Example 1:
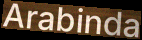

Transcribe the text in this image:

Arabinda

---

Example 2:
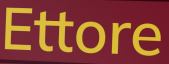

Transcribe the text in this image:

Ettore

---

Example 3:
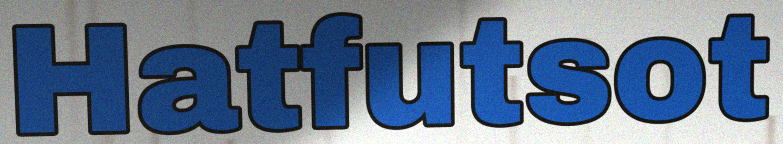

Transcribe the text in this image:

Hatfutsot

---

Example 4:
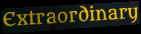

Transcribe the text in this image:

Extraordinary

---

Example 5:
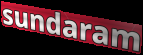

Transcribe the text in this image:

sundaram